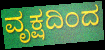
ವೃಕ್ಷದಿಂದ